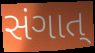
સંગાત્